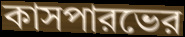
কাসপারভের